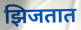
झिजतात